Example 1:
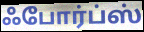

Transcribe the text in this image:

ஃபோர்ப்ஸ்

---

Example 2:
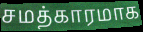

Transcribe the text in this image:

சமத்காரமாக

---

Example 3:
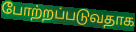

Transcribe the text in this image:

போற்றப்படுவதாக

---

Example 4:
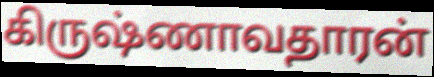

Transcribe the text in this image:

கிருஷ்ணாவதாரன்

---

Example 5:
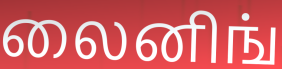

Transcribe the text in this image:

லைனிங்